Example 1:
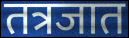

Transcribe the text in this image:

तत्रजात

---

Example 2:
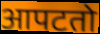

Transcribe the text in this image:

आपटतो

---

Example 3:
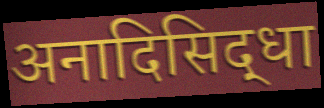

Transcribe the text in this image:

अनादिसिद्धा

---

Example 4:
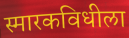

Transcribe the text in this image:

स्मारकविधीला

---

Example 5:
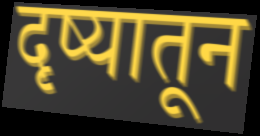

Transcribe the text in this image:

दृष्यातून